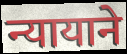
न्यायाने